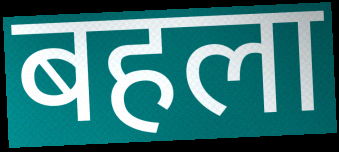
बहला